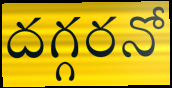
దగ్గరనో